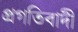
প্রগতিবাদী